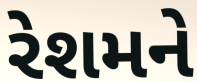
રેશમને